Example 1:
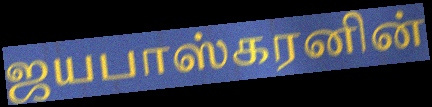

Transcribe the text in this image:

ஜயபாஸ்கரனின்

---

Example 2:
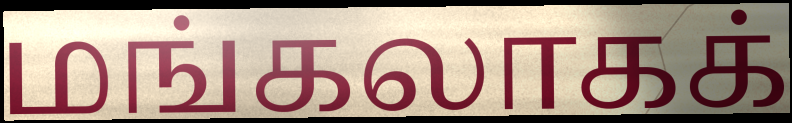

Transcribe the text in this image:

மங்கலாகக்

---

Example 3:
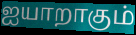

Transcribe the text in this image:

ஐயாறாகும்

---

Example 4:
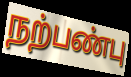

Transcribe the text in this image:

நற்பண்பு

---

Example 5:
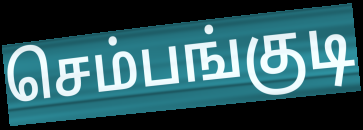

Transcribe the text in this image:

செம்பங்குடி